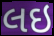
લઇ